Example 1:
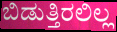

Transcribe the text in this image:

ಬಿಡುತ್ತಿರಲಿಲ್ಲ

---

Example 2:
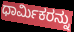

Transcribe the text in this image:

ಧಾರ್ಮಿಕರನ್ನು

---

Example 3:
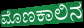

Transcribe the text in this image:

ಮೊಣಕಾಲಿನ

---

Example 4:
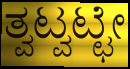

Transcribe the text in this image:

ತ್ವಟ್ವಟ್ಟೇ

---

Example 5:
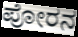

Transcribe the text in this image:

ಪೋರನ